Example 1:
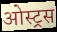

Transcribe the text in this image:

ओस्ट्रस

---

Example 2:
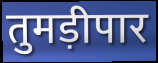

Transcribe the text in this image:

तुमड़ीपार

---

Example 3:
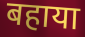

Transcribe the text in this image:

बहाया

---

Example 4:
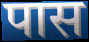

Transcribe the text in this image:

पास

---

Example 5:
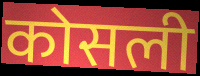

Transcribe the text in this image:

कोसली